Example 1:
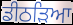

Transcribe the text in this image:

ਡੀਠੜਿਆ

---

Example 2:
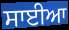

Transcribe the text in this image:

ਸਾਈਆ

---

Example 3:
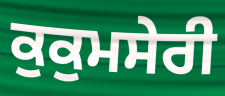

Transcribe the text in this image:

ਕੁਕੁਮਸੇਰੀ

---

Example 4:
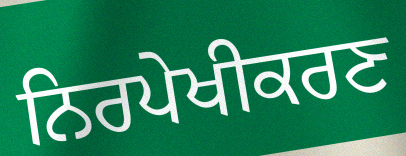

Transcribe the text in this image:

ਨਿਰਪੇਖੀਕਰਣ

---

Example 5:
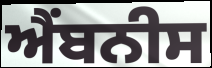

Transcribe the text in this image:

ਐਂਬਨੀਸ